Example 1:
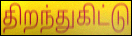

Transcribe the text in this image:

திறந்துகிட்டு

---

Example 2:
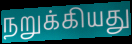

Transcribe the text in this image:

நறுக்கியது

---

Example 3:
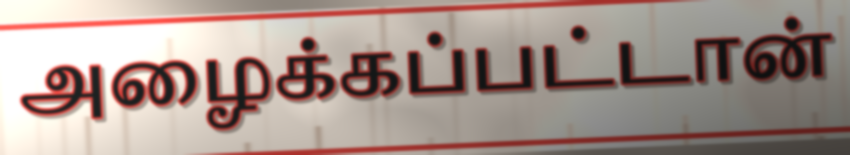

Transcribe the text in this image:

அழைக்கப்பட்டான்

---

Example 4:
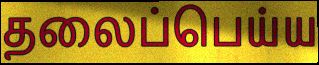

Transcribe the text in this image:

தலைப்பெய்ய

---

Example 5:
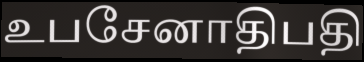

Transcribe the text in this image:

உபசேனாதிபதி